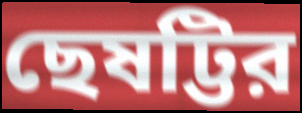
ছেষট্টির